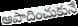
ఆపాదించుకునే